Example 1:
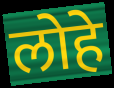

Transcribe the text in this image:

लोहे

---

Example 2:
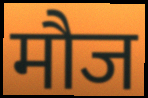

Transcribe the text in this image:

मौज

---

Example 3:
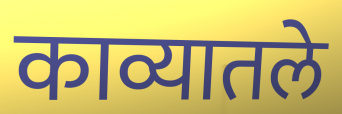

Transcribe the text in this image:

काव्यातले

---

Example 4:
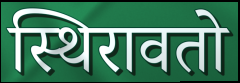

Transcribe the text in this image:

स्थिरावतो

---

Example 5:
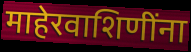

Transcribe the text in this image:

माहेरवाशिणींना